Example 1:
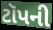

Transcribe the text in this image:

ટૉપની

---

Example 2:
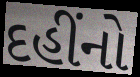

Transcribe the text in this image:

દહીંનો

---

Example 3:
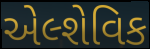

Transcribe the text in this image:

એલ્શેવિક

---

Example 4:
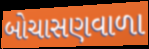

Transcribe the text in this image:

બોચાસણવાળા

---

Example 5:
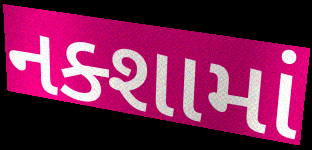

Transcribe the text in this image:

નક્શામાં